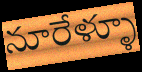
నూరేళ్ళూ